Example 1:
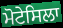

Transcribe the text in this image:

ਮੋਟੇਸਿਲਾ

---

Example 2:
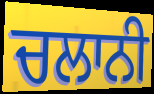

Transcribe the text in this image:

ਚਲਾਨੀ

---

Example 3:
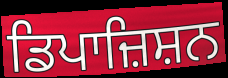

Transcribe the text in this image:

ਡਿਪਾਜ਼ਿਸ਼ਨ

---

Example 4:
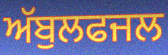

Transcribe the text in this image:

ਅੱਬੁਲਫਜਲ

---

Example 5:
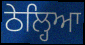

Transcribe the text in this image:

ਠੇਲ੍ਹਿਆ